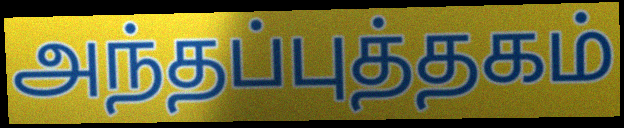
அந்தப்புத்தகம்